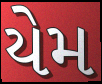
યેમ